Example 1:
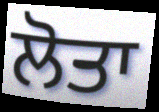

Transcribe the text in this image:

ਲੋਤਾ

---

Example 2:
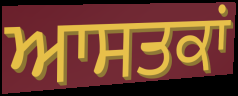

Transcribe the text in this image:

ਆਸਤਕਾਂ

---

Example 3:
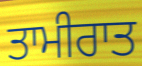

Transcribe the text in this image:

ਤਾਮੀਰਾਤ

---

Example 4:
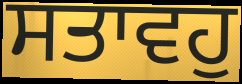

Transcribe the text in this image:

ਸਤਾਵਹੁ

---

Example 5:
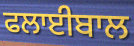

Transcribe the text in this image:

ਫਲਾਈਬਾਲ